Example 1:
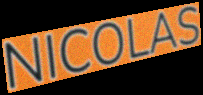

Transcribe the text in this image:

NICOLAS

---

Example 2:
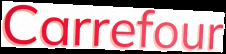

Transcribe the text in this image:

Carrefour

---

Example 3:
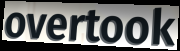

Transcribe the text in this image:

overtook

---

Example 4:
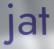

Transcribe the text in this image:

jat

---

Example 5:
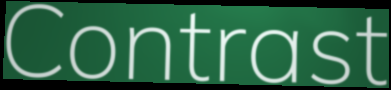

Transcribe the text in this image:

Contrast